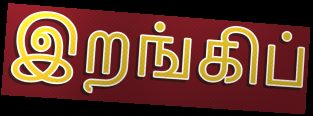
இறங்கிப்